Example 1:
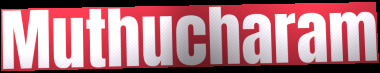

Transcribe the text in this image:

Muthucharam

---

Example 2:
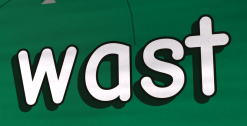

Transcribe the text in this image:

wast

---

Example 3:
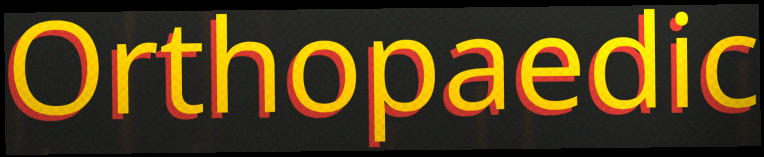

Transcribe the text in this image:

Orthopaedic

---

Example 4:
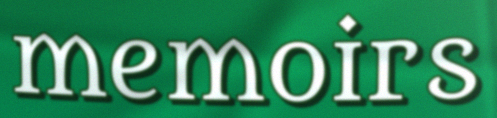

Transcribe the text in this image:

memoirs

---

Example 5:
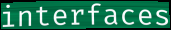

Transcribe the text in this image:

interfaces